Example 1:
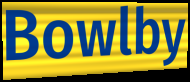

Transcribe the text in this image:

Bowlby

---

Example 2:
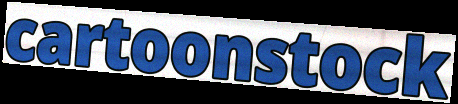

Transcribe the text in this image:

cartoonstock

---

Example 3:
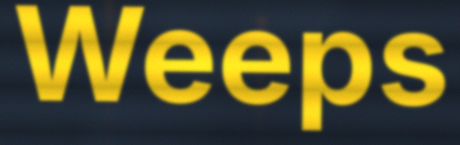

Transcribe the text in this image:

Weeps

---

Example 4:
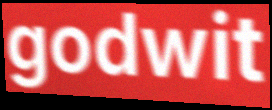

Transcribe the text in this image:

godwit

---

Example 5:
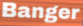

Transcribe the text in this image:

Banger